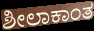
ಶೀಲಾಕಾಂತ